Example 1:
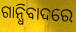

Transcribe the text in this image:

ଗାନ୍ଧିବାଦରେ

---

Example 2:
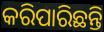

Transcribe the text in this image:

କରିପାରିଛନ୍ତି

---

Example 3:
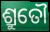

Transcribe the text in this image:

ଶ୍ରୁତୌ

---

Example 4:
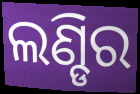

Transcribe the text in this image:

ଲଣ୍ଡିର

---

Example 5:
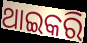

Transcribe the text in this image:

ଥାଇକରି